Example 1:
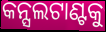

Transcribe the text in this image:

କନ୍ସଲଟାଣ୍ଟକୁ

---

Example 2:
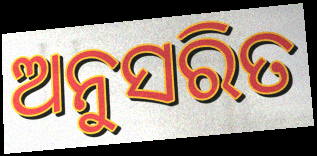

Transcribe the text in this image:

ଅନୁସରିତ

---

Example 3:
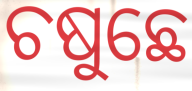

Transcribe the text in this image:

ଚଷୁଛେ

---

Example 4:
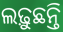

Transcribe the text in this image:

ଲଢ଼ୁଛନ୍ତି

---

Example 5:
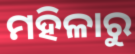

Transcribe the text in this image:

ମହିଳାରୁ